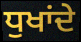
ਧੁਖਾਂਦੇ